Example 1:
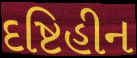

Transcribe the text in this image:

દષ્ટિહીન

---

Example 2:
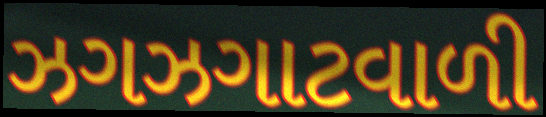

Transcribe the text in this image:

ઝગઝગાટવાળી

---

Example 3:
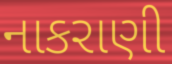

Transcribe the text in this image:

નાકરાણી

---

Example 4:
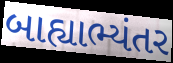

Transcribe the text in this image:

બાહ્યાભ્યંતર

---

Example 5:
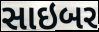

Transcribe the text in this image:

સાઇબર